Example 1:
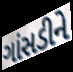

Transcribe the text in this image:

ગાંસડીને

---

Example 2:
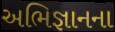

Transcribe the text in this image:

અભિજ્ઞાનના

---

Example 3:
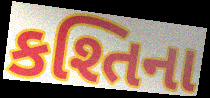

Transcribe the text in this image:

કશ્તિના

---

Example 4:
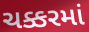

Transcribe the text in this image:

ચક્કરમાં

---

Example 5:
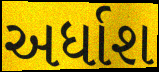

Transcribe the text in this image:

અર્ધાશ